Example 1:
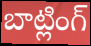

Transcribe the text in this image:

బాట్లింగ్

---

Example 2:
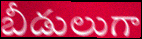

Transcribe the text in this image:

బీడులుగా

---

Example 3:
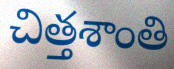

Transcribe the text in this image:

చిత్తశాంతి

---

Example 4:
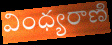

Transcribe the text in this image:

వింధ్యరాణి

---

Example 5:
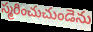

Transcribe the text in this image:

స్మరించుచుండెను